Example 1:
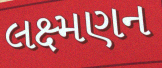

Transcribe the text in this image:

લક્ષ્મણન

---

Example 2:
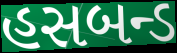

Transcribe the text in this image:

હસબન્ડ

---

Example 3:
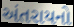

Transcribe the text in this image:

અંતરાયનો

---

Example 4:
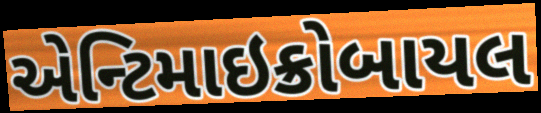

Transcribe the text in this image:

એન્ટિમાઇક્રોબાયલ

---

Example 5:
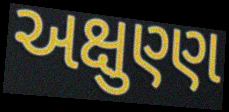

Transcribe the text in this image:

અક્ષુણ્ણ